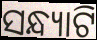
ସନ୍ଧ୍ୟାଟି